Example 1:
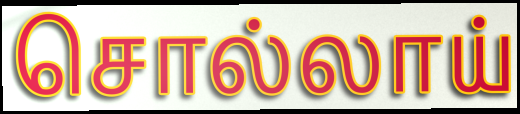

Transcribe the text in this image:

சொல்லாய்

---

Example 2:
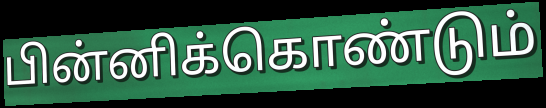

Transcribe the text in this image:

பின்னிக்கொண்டும்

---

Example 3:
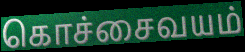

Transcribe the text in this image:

கொச்சைவயம்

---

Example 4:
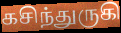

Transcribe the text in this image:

கசிந்துருகி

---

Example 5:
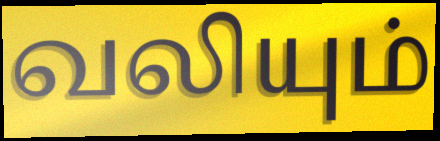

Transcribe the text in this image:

வலியும்